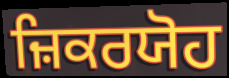
ਜ਼ਿਕਰਯੋਹ